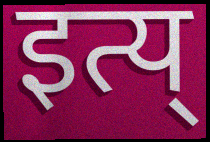
इत्य्